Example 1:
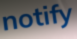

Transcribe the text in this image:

notify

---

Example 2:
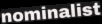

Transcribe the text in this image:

nominalist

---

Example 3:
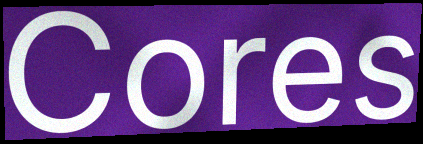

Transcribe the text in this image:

Cores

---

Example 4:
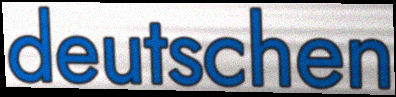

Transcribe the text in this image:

deutschen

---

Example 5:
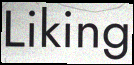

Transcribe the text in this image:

Liking